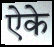
ऐके